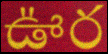
ఊర